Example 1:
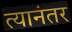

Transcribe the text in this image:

त्यानंतर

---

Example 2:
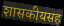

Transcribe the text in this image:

शासकीयसह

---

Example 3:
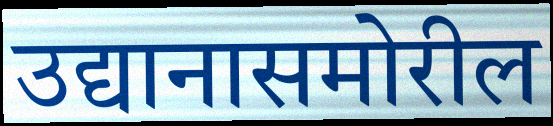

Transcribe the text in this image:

उद्यानासमोरील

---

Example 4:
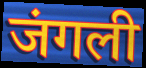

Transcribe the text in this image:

जंगली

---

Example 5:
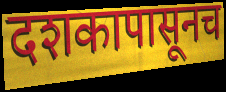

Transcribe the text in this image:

दशकापासूनच